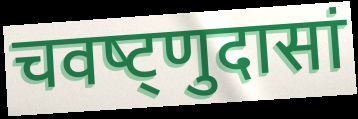
चवष्ट्णुदासां